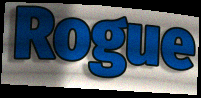
Rogue